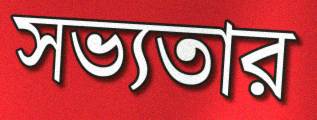
সভ্যতার